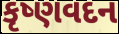
કૃષ્ણવદન